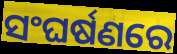
ସଂଘର୍ଷଣରେ